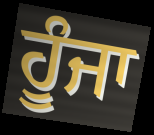
ਹੂੰਜਾ